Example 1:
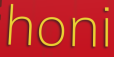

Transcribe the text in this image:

honi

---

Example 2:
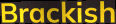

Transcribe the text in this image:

Brackish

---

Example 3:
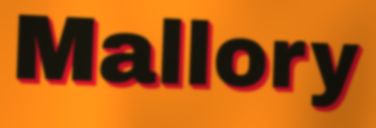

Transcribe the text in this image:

Mallory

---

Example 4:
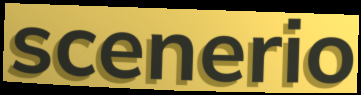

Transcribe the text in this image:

scenerio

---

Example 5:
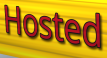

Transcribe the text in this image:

Hosted